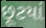
છૂટયાં